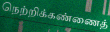
நெற்றிக்கண்ணைத்